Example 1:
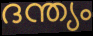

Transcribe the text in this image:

ദന്ത്യം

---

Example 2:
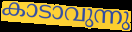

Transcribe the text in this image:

കാടാവുന്നു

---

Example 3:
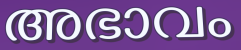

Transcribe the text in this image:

അഭാവം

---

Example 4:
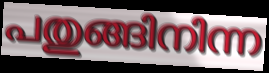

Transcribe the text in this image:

പതുങ്ങിനിന്ന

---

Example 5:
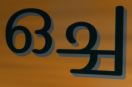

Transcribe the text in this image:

ഒച്ച